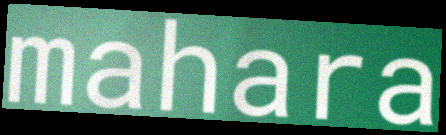
mahara